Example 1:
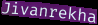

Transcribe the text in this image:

Jivanrekha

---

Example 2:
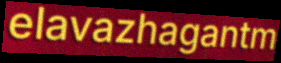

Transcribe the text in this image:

elavazhagantm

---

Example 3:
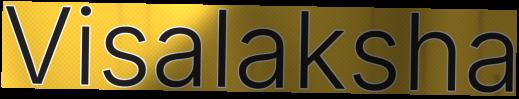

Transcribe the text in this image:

Visalaksha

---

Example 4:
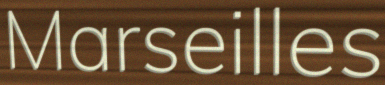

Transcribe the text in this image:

Marseilles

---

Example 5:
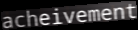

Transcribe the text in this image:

acheivement